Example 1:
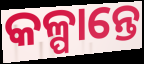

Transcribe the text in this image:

କଳ୍ପାନ୍ତେ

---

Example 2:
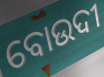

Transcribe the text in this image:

ବୋଉଦୀ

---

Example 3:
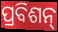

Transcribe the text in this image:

ପ୍ରବିଶନ୍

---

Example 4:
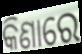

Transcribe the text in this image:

କିଣାରେ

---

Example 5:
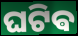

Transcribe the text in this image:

ଘଟିଵ